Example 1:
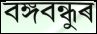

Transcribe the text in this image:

বঙ্গবন্ধুৰ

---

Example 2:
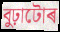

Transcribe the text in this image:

বুঢ়াটোৰ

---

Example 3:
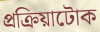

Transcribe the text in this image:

প্ৰক্ৰিয়াটোক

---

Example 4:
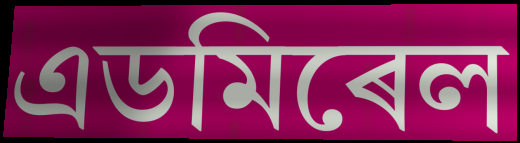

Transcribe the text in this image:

এডমিৰেল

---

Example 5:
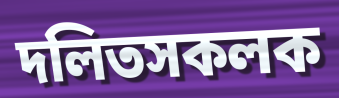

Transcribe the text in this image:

দলিতসকলক